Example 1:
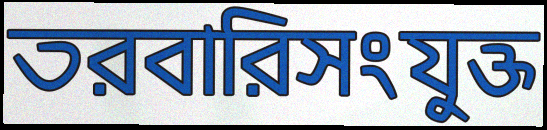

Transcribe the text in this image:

তরবারিসংযুক্ত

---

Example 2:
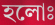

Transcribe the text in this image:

হলোঃ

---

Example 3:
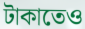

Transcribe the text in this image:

টাকাতেও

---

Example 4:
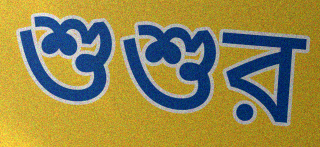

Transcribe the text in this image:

শুশুর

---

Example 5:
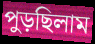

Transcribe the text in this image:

পুড়ছিলাম